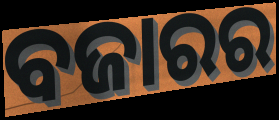
ବଜାରର